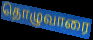
தொழுவாரை